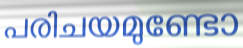
പരിചയമുണ്ടോ